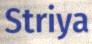
Striya